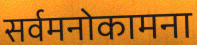
सर्वमनोकामना